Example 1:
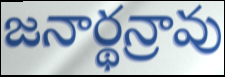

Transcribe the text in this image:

జనార్థన్రావు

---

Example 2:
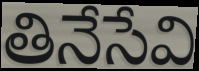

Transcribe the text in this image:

తినేసేవి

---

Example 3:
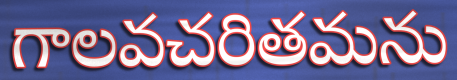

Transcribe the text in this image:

గాలవచరితమను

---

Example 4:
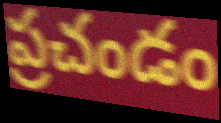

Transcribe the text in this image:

ప్రచండం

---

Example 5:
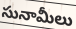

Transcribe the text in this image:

సునామీలు